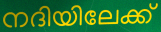
നദിയിലേക്ക്